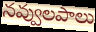
నవ్వులపాలు